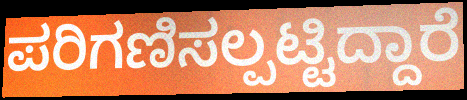
ಪರಿಗಣಿಸಲ್ಪಟ್ಟಿದ್ದಾರೆ